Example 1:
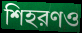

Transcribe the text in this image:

শিহরণও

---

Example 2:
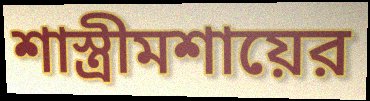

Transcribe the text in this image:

শাস্ত্রীমশায়ের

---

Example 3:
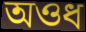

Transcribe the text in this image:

অওধ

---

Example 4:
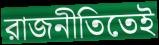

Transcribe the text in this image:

রাজনীতিতেই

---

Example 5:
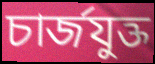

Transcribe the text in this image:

চার্জযুক্ত